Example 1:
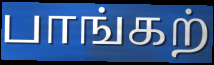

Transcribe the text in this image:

பாங்கற்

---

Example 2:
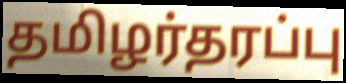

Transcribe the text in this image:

தமிழர்தரப்பு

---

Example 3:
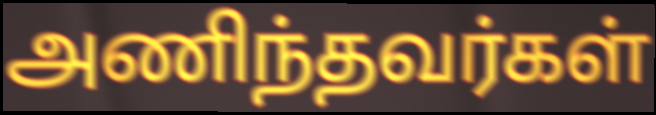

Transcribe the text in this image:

அணிந்தவர்கள்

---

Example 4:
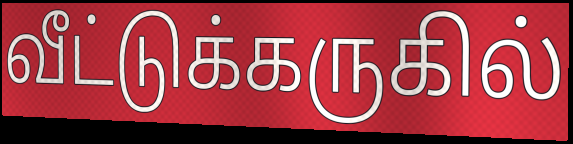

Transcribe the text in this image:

வீட்டுக்கருகில்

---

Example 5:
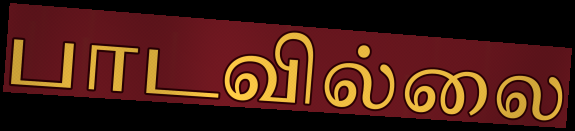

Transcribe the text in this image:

பாடவில்லை